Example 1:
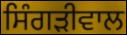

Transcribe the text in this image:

ਸਿੰਗੜੀਵਾਲ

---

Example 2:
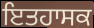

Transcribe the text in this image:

ਇਤਹਾਸਕ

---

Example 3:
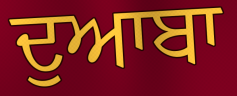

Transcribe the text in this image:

ਦੁਆਬਾ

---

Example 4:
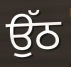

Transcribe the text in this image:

ਉੱਠ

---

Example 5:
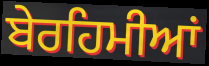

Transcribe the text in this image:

ਬੇਰਹਿਮੀਆਂ